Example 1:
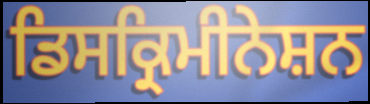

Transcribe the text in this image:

ਡਿਸਕ੍ਰਿਮੀਨੇਸ਼ਨ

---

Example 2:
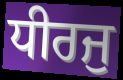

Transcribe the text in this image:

ਧੀਰਜੁ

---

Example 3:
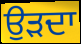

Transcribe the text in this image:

ਉੜਦਾ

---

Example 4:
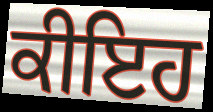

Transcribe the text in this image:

ਕੀਇਹ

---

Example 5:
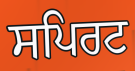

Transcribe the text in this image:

ਸਪਿਰਟ